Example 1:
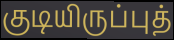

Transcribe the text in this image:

குடியிருப்புத்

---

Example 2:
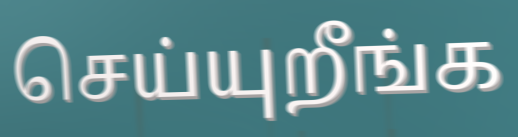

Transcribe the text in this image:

செய்யுறீங்க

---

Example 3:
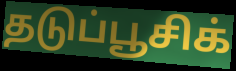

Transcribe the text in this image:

தடுப்பூசிக்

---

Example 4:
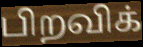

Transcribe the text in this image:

பிறவிக்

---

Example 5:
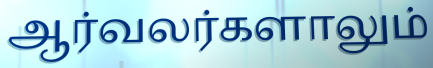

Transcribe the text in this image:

ஆர்வலர்களாலும்